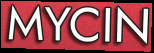
MYCIN